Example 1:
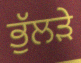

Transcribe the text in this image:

ਭੁੱਲੜੇ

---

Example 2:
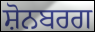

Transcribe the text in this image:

ਸ਼ੋਨਬਰਗ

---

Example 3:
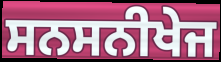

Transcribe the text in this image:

ਸਨਸਨੀਖੇਜ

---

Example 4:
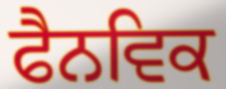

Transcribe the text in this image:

ਫੈਨਵਿਕ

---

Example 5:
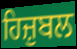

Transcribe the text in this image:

ਹਿਜ਼ੁਬਲ